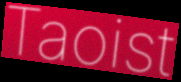
Taoist